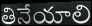
తినేయాలి